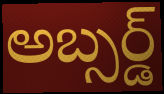
అబ్సర్డ్